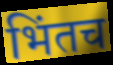
भिंतच